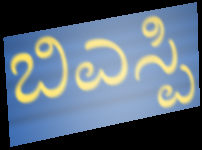
ಬಿಎಸ್ಪಿ